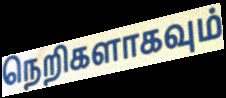
நெறிகளாகவும்